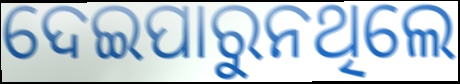
ଦେଇପାରୁନଥିଲେ